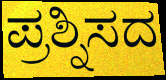
ಪ್ರಶ್ನಿಸದ